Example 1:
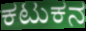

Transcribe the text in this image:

ಕಟುಕನ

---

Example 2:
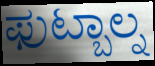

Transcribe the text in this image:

ಫುಟ್ಬಾಲ್ನ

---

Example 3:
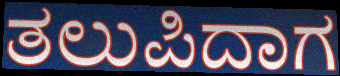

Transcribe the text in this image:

ತಲುಪಿದಾಗ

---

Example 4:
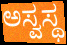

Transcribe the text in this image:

ಅಸ್ವಸ್ಥ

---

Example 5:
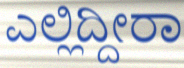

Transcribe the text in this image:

ಎಲ್ಲಿದ್ದೀರಾ